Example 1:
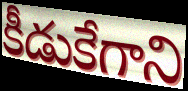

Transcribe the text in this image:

కీడుకేగాని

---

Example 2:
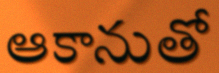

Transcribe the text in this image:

ఆకానుతో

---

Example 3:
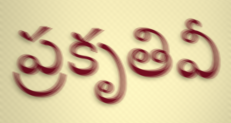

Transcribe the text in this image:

ప్రకృతివీ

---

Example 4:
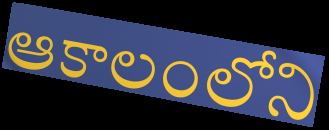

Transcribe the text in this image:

ఆకాలంలోని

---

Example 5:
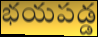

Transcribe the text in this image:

భయపడ్డ